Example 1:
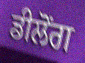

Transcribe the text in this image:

ਡੀਲੋਂਗ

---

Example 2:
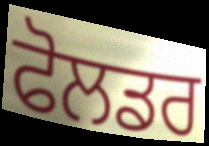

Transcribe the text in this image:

ਫੋਲਡਰ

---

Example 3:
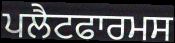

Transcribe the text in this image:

ਪਲੈਟਫਾਰਮਸ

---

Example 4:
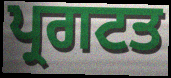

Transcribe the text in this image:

ਪ੍ਰਗਟਤ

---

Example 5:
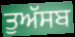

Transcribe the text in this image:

ਤੁਅੱਸਬ